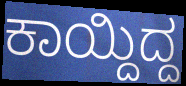
ಕಾಯ್ದಿದ್ದ